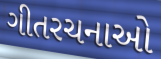
ગીતરચનાઓ